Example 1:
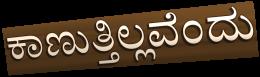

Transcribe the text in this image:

ಕಾಣುತ್ತಿಲ್ಲವೆಂದು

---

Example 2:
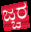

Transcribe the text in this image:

ಜ್ಚರ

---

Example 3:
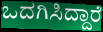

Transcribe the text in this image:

ಒದಗಿಸಿದ್ದಾರೆ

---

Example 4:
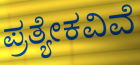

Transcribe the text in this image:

ಪ್ರತ್ಯೇಕವಿವೆ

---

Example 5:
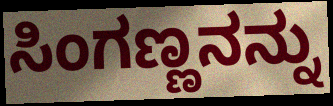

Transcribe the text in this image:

ಸಿಂಗಣ್ಣನನ್ನು